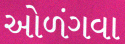
ઓળંગવા